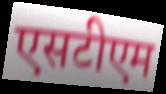
एसटीएम